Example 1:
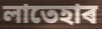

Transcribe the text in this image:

লাতেহাৰ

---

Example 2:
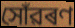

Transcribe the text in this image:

সোঁৱৰণ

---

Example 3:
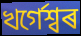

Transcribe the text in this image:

খৰ্গেশ্বৰ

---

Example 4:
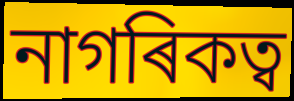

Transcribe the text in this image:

নাগৰিকত্ব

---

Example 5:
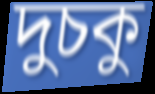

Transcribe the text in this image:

দুচকু